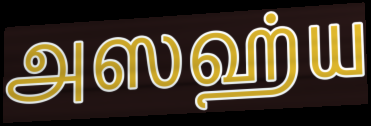
அஸஹ்ய